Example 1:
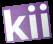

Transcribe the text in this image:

kii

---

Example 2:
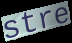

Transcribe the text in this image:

stre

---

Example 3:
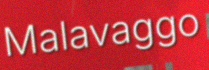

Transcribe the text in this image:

Malavaggo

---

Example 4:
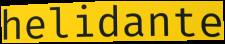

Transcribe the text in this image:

helidante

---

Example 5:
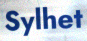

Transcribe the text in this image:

Sylhet